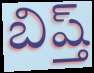
బిష్త్